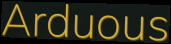
Arduous